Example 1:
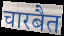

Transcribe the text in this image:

चारबैत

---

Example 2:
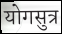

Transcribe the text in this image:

योगसुत्र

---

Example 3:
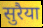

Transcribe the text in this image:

सुरैया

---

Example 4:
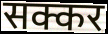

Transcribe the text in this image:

सक्कर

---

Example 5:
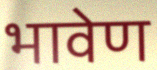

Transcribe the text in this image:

भावेण